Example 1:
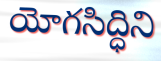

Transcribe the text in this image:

యోగసిద్ధిని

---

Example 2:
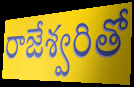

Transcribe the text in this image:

రాజేశ్వరితో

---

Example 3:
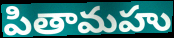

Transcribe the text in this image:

పితామహు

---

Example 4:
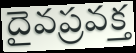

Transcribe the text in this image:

దైవప్రవక్త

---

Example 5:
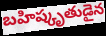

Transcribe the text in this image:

బహిష్కృతుడైన